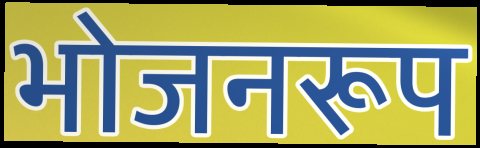
भोजनरूप